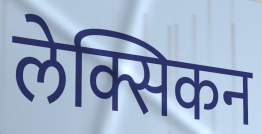
लेक्सिकन